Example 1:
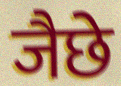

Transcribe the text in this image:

जैछे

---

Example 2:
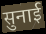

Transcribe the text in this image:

सुनाई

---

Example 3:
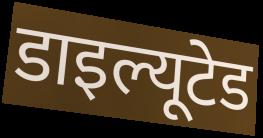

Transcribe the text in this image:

डाइल्यूटेड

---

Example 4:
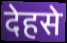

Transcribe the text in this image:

देहसे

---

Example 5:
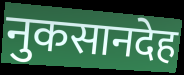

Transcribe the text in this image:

नुकसानदेह